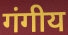
गंगीय